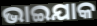
ଭାଇଯାକ